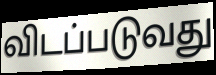
விடப்படுவது